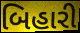
બિહારી